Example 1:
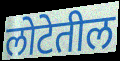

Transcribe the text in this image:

लोटेतील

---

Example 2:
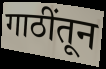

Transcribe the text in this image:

गाठींतून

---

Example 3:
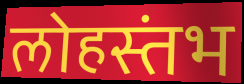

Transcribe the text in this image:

लोहस्तंभ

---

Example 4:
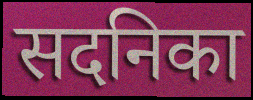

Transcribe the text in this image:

सदनिका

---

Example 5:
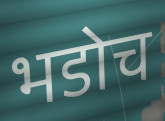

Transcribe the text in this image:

भडोच